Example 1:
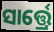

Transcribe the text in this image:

ସାର୍ତ୍ତ୍ରେ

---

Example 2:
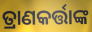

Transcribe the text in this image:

ତ୍ରାଣକର୍ତ୍ତାଙ୍କ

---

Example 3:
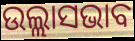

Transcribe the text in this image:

ଉଲ୍ଲାସଭାବ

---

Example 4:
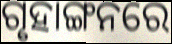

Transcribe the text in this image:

ଗୃହାଙ୍ଗନରେ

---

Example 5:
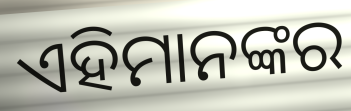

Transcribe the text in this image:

ଏହିମାନଙ୍କର